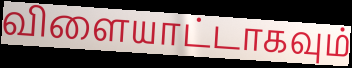
விளையாட்டாகவும்